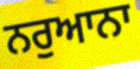
ਨਰੁਆਨਾ